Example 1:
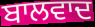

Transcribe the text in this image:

ਬਾਲਵਾਦ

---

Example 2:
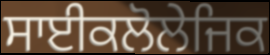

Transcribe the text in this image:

ਸਾਈਕਲੋਲੇਜਿਕ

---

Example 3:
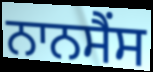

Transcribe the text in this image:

ਨਾਨਸੈਂਸ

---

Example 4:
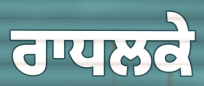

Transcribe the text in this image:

ਰਾਧਲਕੇ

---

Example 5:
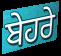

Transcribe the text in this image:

ਬੇਹਰੇ